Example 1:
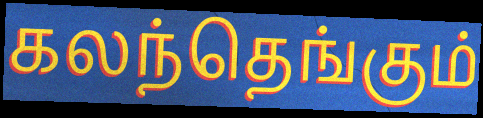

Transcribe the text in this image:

கலந்தெங்கும்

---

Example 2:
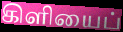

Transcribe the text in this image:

கிளியைப்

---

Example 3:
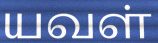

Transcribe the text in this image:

யவள்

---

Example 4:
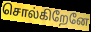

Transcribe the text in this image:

சொல்கிறேனே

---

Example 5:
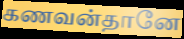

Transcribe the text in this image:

கணவன்தானே